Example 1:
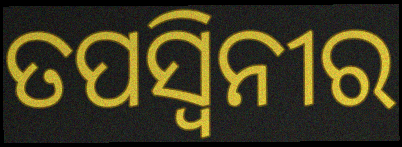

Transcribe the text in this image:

ତପସ୍ୱିନୀର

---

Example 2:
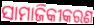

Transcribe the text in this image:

ସାମାଜିକୀକରଣ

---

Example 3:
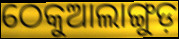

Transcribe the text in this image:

ଠେକୁଆଲାଙ୍ଗୁଡ଼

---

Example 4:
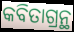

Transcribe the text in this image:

କବିତାଗ୍ରନ୍ଥ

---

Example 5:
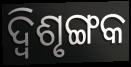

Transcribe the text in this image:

ଦ୍ବିଶୃଙ୍ଗକ